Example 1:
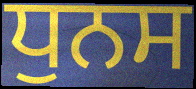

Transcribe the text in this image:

ਧੁਨਸ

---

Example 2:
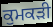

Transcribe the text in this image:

ਕੁਮਕੜੀ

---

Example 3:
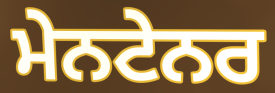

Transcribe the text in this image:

ਮੇਨਟੇਨਰ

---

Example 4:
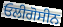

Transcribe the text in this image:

ਓਲੀਗੋਸੀਨ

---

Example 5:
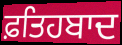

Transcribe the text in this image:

ਫ਼ਤਿਹਬਾਦ